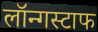
लॉन्गस्टाफ